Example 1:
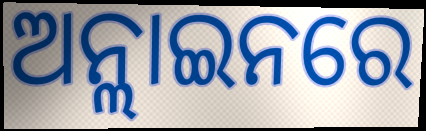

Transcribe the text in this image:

ଅନ୍ଲାଇନରେ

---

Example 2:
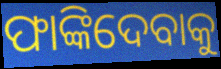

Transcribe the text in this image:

ଫାଙ୍କିଦେବାକୁ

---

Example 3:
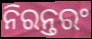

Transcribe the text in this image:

ନିରନ୍ତରଂ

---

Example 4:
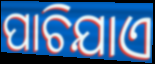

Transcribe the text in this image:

ପାଚିଯାଏ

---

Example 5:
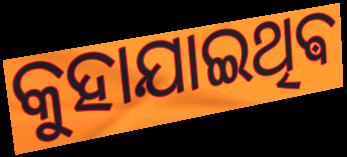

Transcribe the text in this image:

କୁହାଯାଇଥିଵ